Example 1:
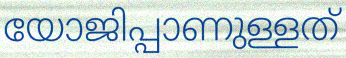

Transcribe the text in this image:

യോജിപ്പാണുള്ളത്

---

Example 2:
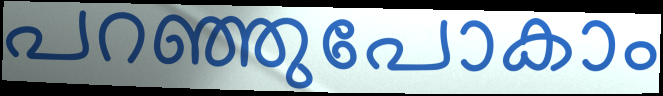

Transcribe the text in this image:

പറഞ്ഞുപോകാം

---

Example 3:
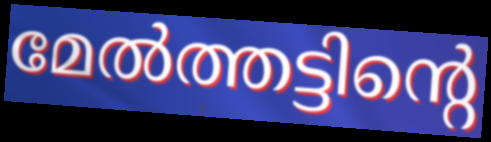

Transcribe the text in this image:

മേൽത്തട്ടിന്റെ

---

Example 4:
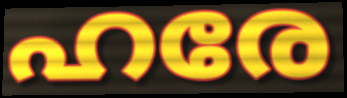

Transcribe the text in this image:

ഹരേ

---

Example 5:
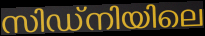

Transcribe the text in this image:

സിഡ്നിയിലെ